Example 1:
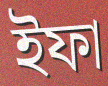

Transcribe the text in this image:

ইফা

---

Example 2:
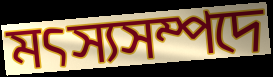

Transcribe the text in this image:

মৎস্যসম্পদে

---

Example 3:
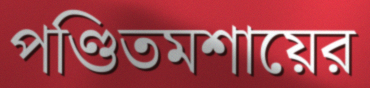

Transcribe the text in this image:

পণ্ডিতমশায়ের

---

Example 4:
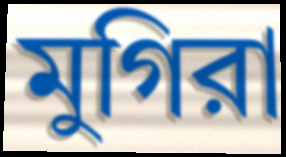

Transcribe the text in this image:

মুগিরা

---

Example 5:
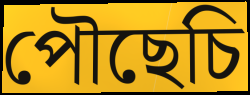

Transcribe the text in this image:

পৌছেচি